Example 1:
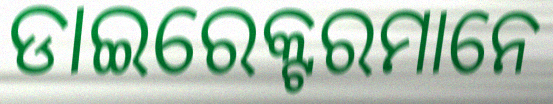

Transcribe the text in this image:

ଡାଇରେକ୍ଟରମାନେ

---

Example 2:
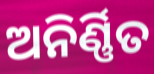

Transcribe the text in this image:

ଅନିର୍ଣ୍ଣିତ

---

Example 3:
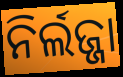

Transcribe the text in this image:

ନିର୍ଲଜ୍ଜା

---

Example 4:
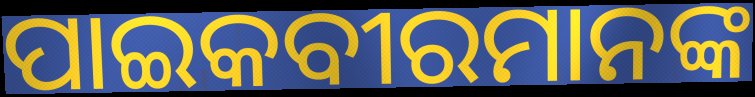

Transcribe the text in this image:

ପାଇକବୀରମାନଙ୍କ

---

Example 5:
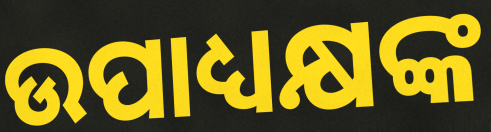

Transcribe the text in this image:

ଉପାଧ୍ୟକ୍ଷଙ୍କ